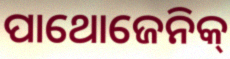
ପାଥୋଜେନିକ୍